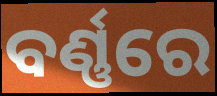
ବର୍ଣ୍ଣରେ